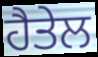
ਹੈਤੇਲ